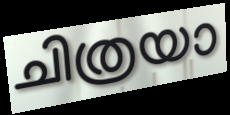
ചിത്രയാ